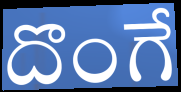
దొంగే